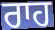
ਰਾਹ